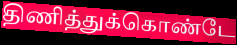
திணித்துக்கொண்டே